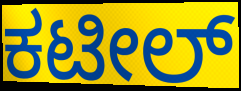
ಕಟೀಲ್